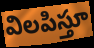
విలపిస్తూ